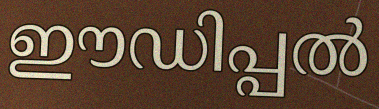
ഈഡിപ്പൽ